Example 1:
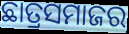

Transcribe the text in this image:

ଛାତ୍ରସମାଜର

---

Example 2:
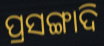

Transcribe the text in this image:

ପ୍ରସଙ୍ଗାଦି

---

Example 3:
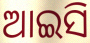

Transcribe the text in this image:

ଆଇସି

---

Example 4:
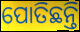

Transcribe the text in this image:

ପୋତିଛନ୍ତି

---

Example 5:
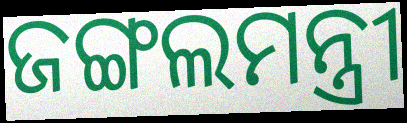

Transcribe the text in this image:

ଜଙ୍ଗଲମନ୍ତ୍ରୀ